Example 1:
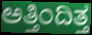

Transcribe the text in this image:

ಅತ್ತಿಂದಿತ್ತ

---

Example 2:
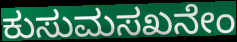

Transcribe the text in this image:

ಕುಸುಮಸಖನೇಂ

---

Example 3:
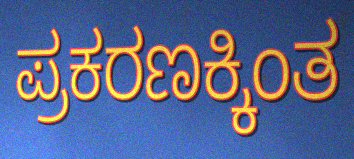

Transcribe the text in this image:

ಪ್ರಕರಣಕ್ಕಿಂತ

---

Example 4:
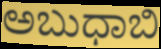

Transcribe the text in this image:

ಅಬುಧಾಬಿ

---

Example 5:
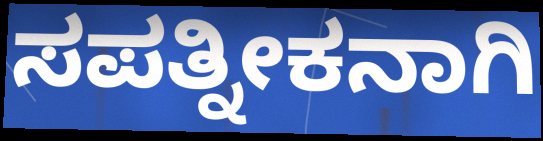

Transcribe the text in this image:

ಸಪತ್ನೀಕನಾಗಿ